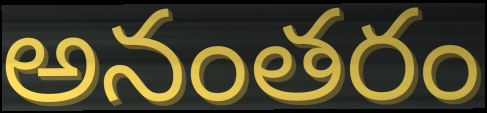
అనంతరం